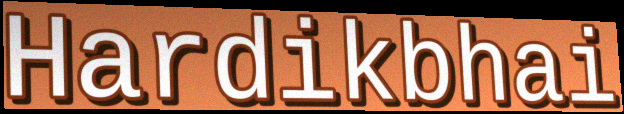
Hardikbhai